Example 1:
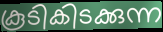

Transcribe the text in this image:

കൂടികിടക്കുന്ന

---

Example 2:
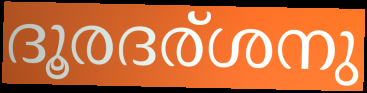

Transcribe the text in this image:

ദൂരദര്ശനു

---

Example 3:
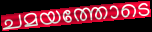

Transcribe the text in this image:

ചമയത്തോടെ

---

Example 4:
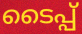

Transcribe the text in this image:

ടൈപ്പ്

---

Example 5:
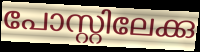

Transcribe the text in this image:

പോസ്റ്റിലേക്കു